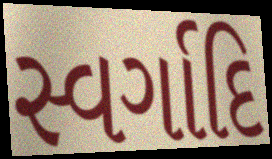
સ્વર્ગાદિ